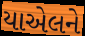
યાએલને